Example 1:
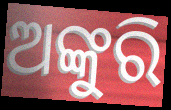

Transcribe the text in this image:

ଅଙ୍କୁରି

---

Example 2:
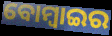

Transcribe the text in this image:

ବୋମ୍ବାଇର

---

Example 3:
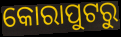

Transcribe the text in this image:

କୋରାପୁଟରୁ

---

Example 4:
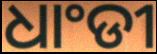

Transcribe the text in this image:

ଧାଂଡୀ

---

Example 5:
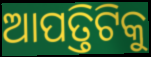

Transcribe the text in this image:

ଆପତ୍ତିଟିକୁ